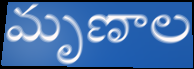
మృణాల